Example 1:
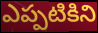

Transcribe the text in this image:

ఎప్పటికిని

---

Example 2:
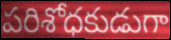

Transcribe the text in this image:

పరిశోధకుడుగా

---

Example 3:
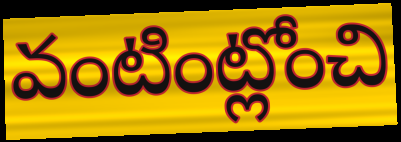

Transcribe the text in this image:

వంటింట్లోంచి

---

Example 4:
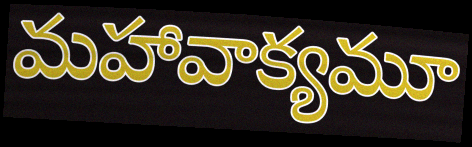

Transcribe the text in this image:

మహావాక్యమూ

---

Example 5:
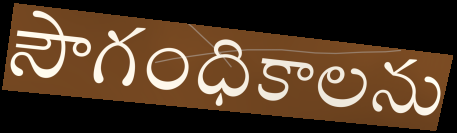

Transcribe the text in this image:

సౌగంధికాలను